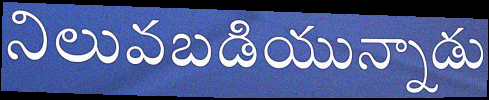
నిలువబడియున్నాడు